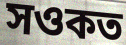
সওকত